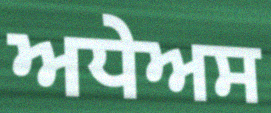
ਅਧੇਅਸ